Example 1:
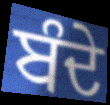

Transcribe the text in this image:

ਬੰਦੇ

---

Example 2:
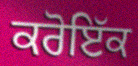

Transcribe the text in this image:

ਕਰੋਇੱਕ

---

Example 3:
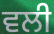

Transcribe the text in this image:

ਵਲੀ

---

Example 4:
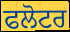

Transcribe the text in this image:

ਫਲੋਟਰ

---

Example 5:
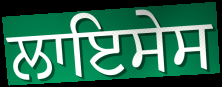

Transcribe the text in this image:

ਲਾਇਸੇਸ